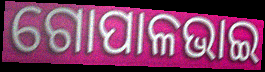
ଗୋପାଳଭାଇ